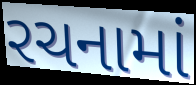
રચનામાં